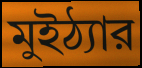
মুইঠ্যার